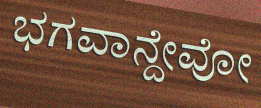
ಭಗವಾನ್ದೇವೋ